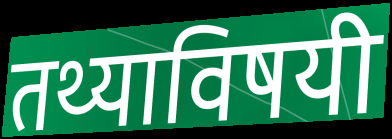
तथ्याविषयी